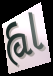
હ્વા